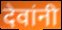
देवांनी